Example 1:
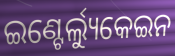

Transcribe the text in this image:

ଇଣ୍ଟେର୍ଲ୍ୟୁକେଇନ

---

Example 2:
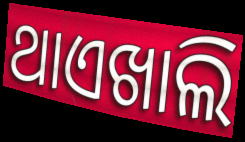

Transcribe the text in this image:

ଥାଏଖାଲି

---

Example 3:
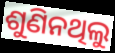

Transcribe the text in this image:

ଶୁଣିନଥିଲୁ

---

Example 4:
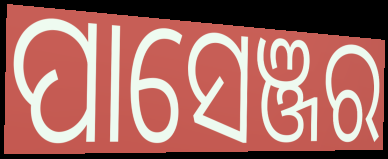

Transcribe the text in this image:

ପାସେଞ୍ଜର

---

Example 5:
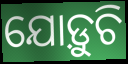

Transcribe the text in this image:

ଯୋଡ଼ୁଚି